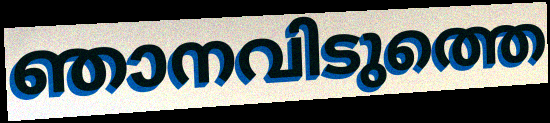
ഞാനവിടുത്തെ